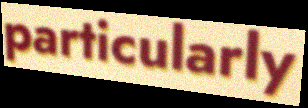
particularly